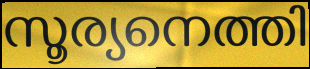
സൂര്യനെത്തി